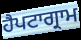
ਹੈਪਟਾਗ੍ਰਾਮ